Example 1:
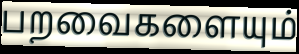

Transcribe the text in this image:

பறவைகளையும்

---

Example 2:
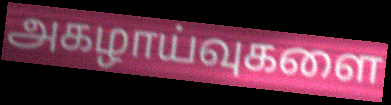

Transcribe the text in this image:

அகழாய்வுகளை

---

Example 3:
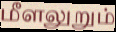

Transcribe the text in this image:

மீளலுறும்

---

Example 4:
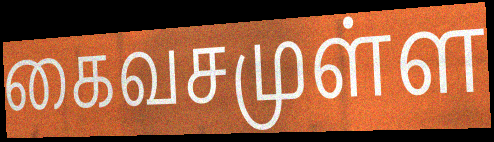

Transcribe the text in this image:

கைவசமுள்ள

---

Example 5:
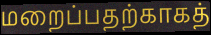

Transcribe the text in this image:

மறைப்பதற்காகத்